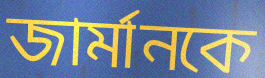
জার্মানকে